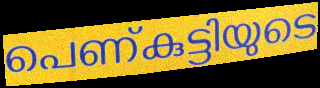
പെണ്കുട്ടിയുടെ